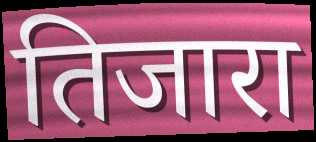
तिजारा